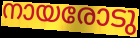
നായരോടു